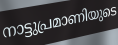
നാട്ടുപ്രമാണിയുടെ